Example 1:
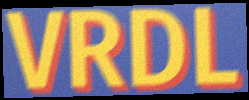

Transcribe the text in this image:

VRDL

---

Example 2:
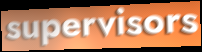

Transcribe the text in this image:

supervisors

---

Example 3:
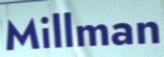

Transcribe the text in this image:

Millman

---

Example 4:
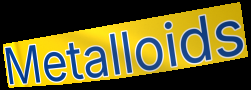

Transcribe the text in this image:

Metalloids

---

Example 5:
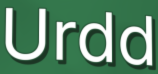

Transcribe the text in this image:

Urdd